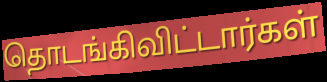
தொடங்கிவிட்டார்கள்